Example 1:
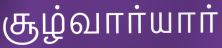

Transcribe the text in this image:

சூழ்வார்யார்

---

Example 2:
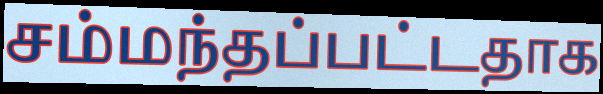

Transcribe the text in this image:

சம்மந்தப்பட்டதாக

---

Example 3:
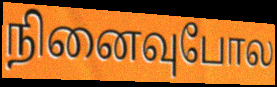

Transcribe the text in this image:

நினைவுபோல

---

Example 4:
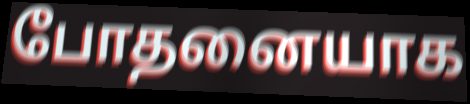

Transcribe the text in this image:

போதனையாக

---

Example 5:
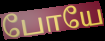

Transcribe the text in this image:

போயே